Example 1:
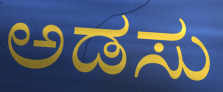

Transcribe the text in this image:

ಅಡಸು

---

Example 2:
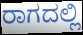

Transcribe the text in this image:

ರಾಗದಲ್ಲಿ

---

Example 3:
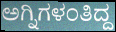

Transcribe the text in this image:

ಅಗ್ನಿಗಳಂತಿದ್ದ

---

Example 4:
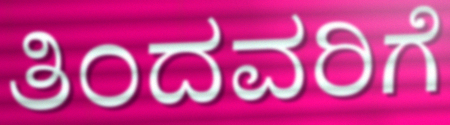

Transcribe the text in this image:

ತಿಂದವರಿಗೆ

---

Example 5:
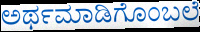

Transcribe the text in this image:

ಅರ್ಥಮಾಡಿಗೊಂಬಲೆ